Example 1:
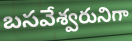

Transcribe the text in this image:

బసవేశ్వరునిగా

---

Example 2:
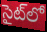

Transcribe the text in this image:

సైట్‌లో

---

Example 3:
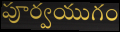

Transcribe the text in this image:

పూర్వయుగం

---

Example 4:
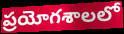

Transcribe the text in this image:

ప్రయోగశాలలో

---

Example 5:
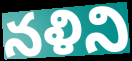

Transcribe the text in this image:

నళిని